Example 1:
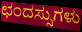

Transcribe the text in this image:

ಛಂದಸ್ಸುಗಳು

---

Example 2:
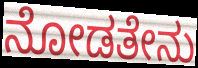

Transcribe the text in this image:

ನೋಡತೇನು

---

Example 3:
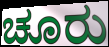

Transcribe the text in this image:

ಚೂರು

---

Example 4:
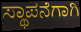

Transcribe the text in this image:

ಸ್ಥಾಪನೆಗಾಗಿ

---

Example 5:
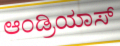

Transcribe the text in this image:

ಆಂಡ್ರಿಯಾಸ್